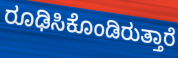
ರೂಢಿಸಿಕೊಂಡಿರುತ್ತಾರೆ